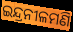
ଇନ୍ଦ୍ରନୀଳମଣି